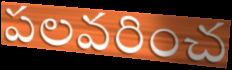
పలవరించ